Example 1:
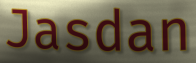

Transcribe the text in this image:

Jasdan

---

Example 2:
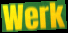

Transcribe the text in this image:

Werk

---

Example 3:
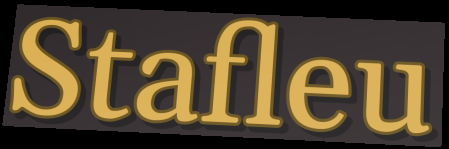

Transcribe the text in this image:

Stafleu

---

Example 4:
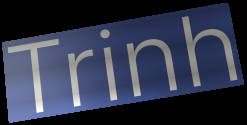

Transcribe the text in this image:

Trinh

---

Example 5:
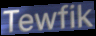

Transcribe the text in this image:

Tewfik